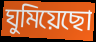
ঘুমিয়েছো